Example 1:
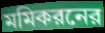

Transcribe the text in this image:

মমিকরনের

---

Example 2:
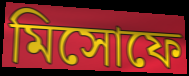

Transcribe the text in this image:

মিসোফে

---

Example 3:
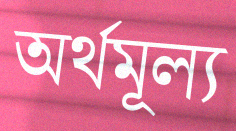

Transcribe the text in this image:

অর্থমূল্য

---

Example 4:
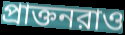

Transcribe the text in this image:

প্রাক্তনরাও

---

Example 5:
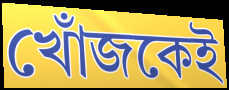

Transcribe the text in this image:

খোঁজকেই